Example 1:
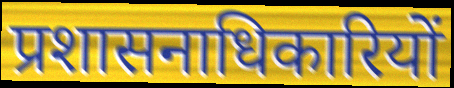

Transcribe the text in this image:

प्रशासनाधिकारियों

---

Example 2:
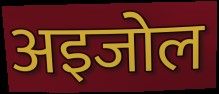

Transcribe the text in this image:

अइजोल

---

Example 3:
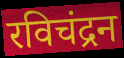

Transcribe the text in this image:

रविचंद्रन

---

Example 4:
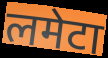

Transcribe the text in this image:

लमेटा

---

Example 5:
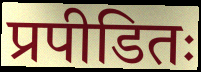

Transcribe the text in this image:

प्रपीडितः